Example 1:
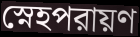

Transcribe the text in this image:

স্নেহপরায়ণ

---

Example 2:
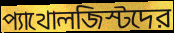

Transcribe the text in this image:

প্যাথোলজিস্টদের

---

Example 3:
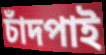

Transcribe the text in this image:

চাঁদপাই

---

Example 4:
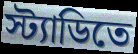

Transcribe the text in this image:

স্ট্যাডিতে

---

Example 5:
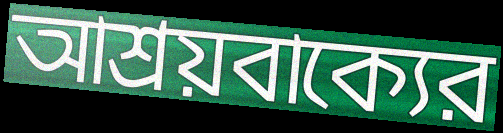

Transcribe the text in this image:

আশ্রয়বাক্যের